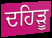
ਦਹਿੜੂ